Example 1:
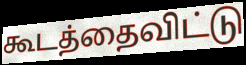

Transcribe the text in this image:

கூடத்தைவிட்டு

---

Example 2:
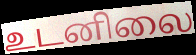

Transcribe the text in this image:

உடனிலை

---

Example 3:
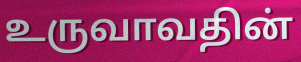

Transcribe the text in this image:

உருவாவதின்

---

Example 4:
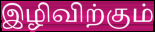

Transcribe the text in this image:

இழிவிற்கும்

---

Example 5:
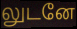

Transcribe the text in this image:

லுடனே